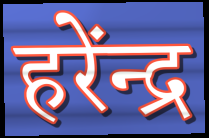
हरेंन्द्र